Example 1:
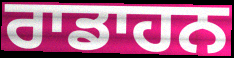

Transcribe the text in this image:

ਰਾਡਾਹਨ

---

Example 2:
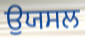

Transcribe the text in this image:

ਉਯਸਲ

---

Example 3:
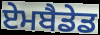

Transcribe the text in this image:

ਏਮਬੈਡੇਡ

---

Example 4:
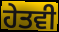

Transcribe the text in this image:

ਹੇਤਵੀ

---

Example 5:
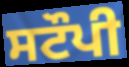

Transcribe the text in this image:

ਸਟੌਪੀ